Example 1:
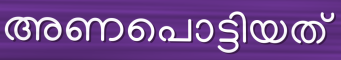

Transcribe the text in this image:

അണപൊട്ടിയത്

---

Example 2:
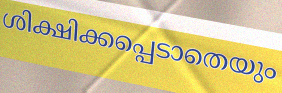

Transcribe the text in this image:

ശിക്ഷിക്കപ്പെടാതെയും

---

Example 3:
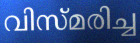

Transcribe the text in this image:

വിസ്മരിച്ച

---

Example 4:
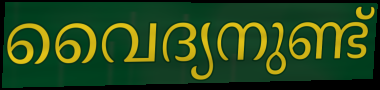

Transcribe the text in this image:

വൈദ്യനുണ്ട്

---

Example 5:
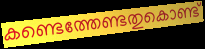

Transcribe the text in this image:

കണ്ടെത്തേണ്ടതുകൊണ്ട്